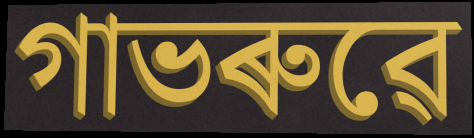
গাভৰুৱে